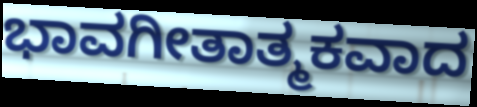
ಭಾವಗೀತಾತ್ಮಕವಾದ